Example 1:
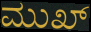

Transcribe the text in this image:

ಮುಖ್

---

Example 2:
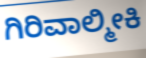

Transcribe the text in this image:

ಗಿರಿವಾಲ್ಮೀಕಿ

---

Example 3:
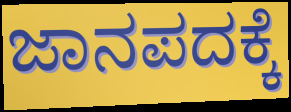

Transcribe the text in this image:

ಜಾನಪದಕ್ಕೆ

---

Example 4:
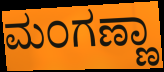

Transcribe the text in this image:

ಮಂಗಣ್ಣಾ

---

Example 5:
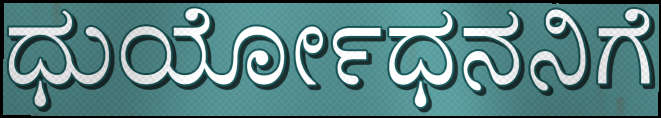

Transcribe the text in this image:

ಧುರ್ಯೋಧನನಿಗೆ